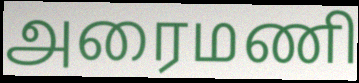
அரைமணி